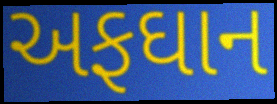
અફઘાન